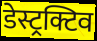
डेस्ट्रक्टिव